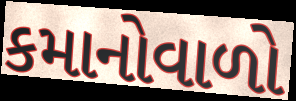
કમાનોવાળો